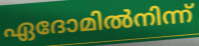
ഏദോമിൽനിന്ന്